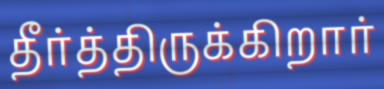
தீர்த்திருக்கிறார்